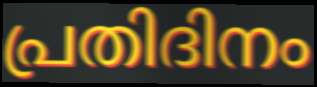
പ്രതിദിനം